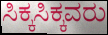
ಸಿಕ್ಕಸಿಕ್ಕವರು